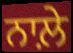
ਨਾਲ਼ੇ